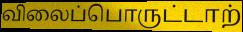
விலைப்பொருட்டாற்